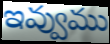
ఇవ్వుము